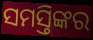
ସମସ୍ତିଙ୍କର